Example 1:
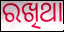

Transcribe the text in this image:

ରଖିଥା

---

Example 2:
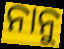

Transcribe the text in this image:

ନାନୁ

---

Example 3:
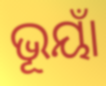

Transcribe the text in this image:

ଭୂୟାଁ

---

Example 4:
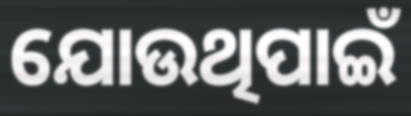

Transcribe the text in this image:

ଯୋଉଥିପାଇଁ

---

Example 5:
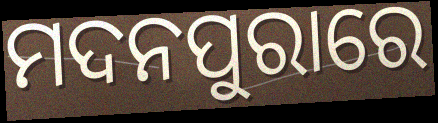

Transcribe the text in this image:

ମଦନପୁରାରେ